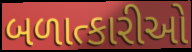
બળાત્કારીઓ